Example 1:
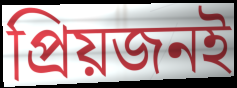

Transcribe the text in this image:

প্রিয়জনই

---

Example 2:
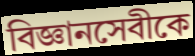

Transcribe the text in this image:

বিজ্ঞানসেবীকে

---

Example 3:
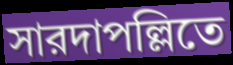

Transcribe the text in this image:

সারদাপল্লিতে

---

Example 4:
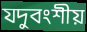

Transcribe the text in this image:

যদুবংশীয়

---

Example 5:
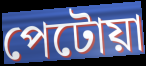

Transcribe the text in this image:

পেটোয়া